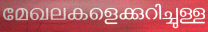
മേഖലകളെക്കുറിച്ചുള്ള